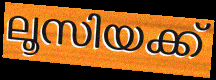
ലൂസിയക്ക്